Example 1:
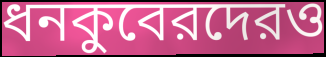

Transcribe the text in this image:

ধনকুবেরদেরও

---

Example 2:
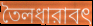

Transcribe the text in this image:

তৈলধারাবৎ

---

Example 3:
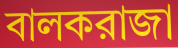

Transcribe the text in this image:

বালকরাজা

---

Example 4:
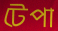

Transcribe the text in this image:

টেপা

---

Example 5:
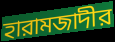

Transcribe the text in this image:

হারামজাদীর